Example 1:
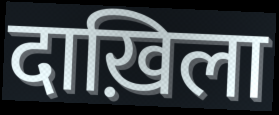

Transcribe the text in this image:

दाख़िला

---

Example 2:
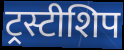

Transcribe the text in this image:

ट्रस्टीशिप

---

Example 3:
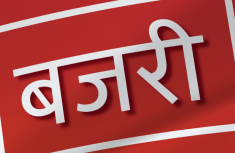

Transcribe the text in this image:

बजरी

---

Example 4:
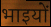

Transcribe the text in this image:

भाइयों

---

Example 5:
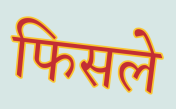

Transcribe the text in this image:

फिसले